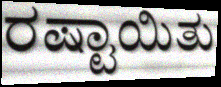
ರಷ್ಟಾಯಿತು